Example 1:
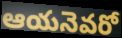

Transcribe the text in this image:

ఆయనెవరో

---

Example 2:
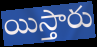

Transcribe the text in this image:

యిస్తారు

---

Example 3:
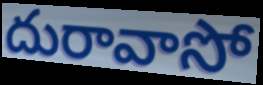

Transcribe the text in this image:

దురావాసో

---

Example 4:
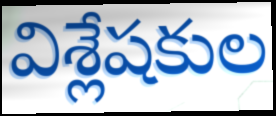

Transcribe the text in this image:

విశ్లేషకుల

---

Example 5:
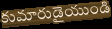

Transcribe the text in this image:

కుమారుడైయుండి